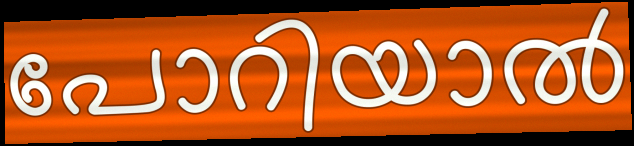
പോറിയാൽ